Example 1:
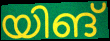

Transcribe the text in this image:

യിങ്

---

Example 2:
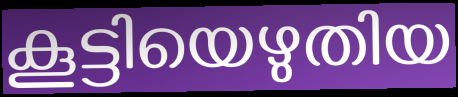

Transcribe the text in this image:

കൂട്ടിയെഴുതിയ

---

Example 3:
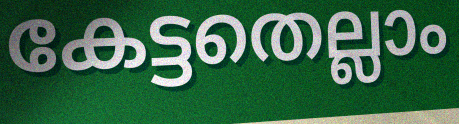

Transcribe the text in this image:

കേട്ടതെല്ലാം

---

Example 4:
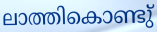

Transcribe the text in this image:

ലാത്തികൊണ്ടു്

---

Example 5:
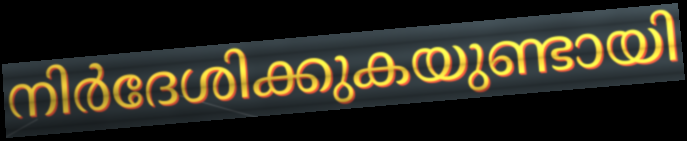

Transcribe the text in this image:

നിർദേശിക്കുകയുണ്ടായി